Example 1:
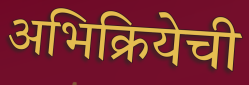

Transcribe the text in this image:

अभिक्रियेची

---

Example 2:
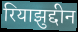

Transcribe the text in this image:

रियाझुद्दीन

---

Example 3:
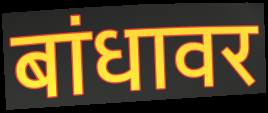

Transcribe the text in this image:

बांधावर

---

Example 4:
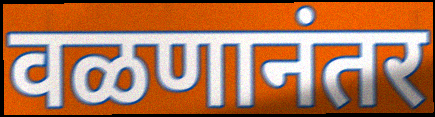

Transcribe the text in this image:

वळणानंतर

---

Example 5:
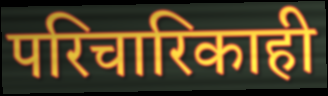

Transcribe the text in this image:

परिचारिकाही